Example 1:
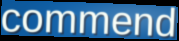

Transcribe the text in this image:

commend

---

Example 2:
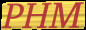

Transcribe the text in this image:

PHM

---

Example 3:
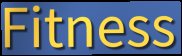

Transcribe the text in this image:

Fitness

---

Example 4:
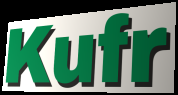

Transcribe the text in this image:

Kufr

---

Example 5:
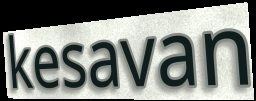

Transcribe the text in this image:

kesavan